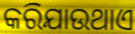
କରିଯାଉଥାଏ